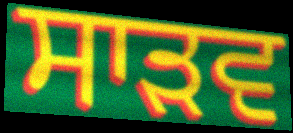
ਸਾੜਵ